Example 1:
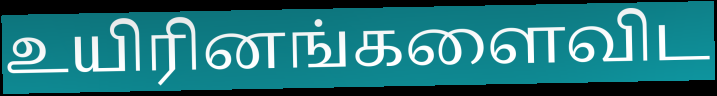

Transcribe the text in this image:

உயிரினங்களைவிட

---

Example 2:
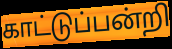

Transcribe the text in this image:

காட்டுப்பன்றி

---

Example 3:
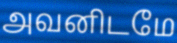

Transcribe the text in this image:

அவனிடமே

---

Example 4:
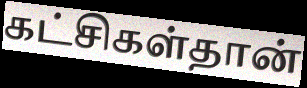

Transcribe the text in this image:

கட்சிகள்தான்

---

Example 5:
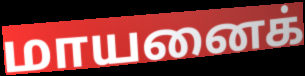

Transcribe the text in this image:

மாயனைக்